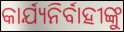
କାର୍ଯ୍ୟନିର୍ବାହୀଙ୍କୁ